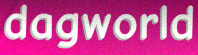
dagworld